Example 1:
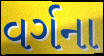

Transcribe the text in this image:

વર્ગના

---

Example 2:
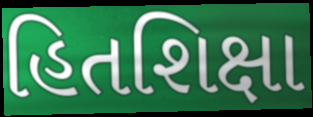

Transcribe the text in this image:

હિતશિક્ષા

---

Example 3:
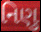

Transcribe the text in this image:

નિણુ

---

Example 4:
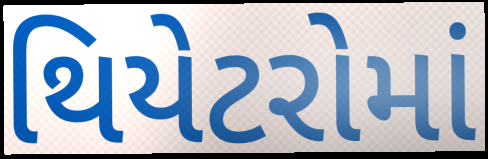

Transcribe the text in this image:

થિયેટરોમાં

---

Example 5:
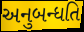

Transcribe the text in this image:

અનુબન્ધતિ